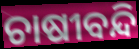
ଚାଷୀବନ୍ଦି